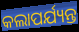
କଲାପର୍ଯ୍ୟନ୍ତ